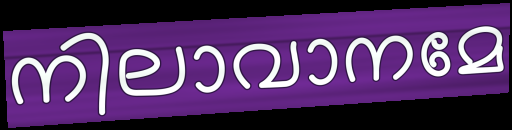
നിലാവാനമേ